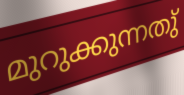
മുറുക്കുന്നതു്